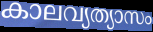
കാലവ്യത്യാസം